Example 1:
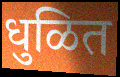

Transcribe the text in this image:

धुळित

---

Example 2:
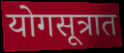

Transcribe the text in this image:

योगसूत्रात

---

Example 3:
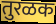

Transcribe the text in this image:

तुरळक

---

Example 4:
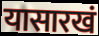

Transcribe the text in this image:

यासारखं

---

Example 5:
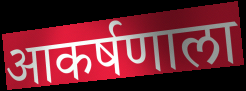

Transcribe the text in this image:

आकर्षणाला